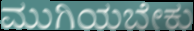
ಮುಗಿಯಬೇಕು